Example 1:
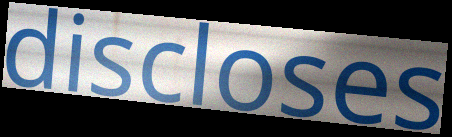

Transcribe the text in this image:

discloses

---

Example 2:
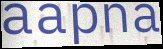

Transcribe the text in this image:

aapna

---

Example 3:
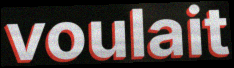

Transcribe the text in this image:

voulait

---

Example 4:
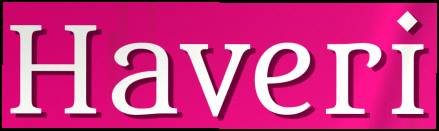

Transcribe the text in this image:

Haveri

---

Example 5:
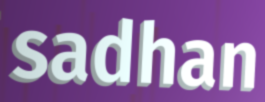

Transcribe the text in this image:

sadhan